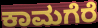
ಕಾಮಗೆರೆ